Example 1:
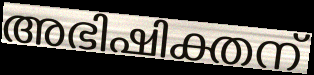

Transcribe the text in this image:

അഭിഷിക്തന്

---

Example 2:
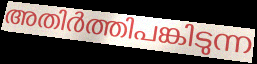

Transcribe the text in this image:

അതിർത്തിപങ്കിടുന്ന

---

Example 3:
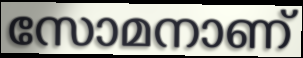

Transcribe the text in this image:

സോമനാണ്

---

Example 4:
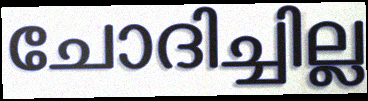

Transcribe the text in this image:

ചോദിച്ചില്ല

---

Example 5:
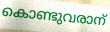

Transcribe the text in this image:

കൊണ്ടുവരാന്